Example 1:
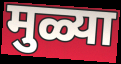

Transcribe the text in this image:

मुळ्या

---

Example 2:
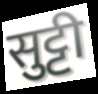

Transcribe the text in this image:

सुट्टी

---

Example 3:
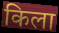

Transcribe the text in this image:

किला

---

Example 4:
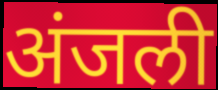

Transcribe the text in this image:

अंजली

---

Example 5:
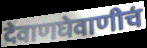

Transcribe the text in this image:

देवाणघेवाणीचं